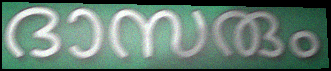
ദാസരും